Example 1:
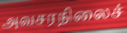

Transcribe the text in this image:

அவசரநிலைச்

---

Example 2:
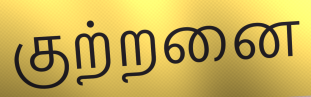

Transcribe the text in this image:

குற்றனை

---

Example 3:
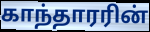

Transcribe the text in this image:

காந்தாரரின்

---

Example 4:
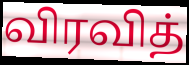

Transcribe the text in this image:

விரவித்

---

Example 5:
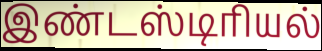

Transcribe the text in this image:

இண்டஸ்டிரியல்